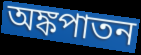
অঙ্কপাতন